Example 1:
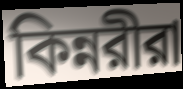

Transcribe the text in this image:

কিন্নরীরা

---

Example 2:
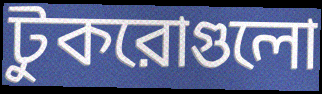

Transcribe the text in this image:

টুকরোগুলো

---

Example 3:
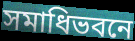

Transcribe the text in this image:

সমাধিভবনে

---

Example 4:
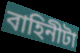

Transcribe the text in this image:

বাহিনীটা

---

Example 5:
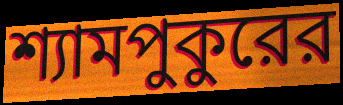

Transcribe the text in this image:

শ্যামপুকুরের